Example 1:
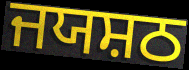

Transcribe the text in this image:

ਜਯਸ਼ਠ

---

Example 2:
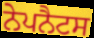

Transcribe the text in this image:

ਨੇਪਨੈਟਸ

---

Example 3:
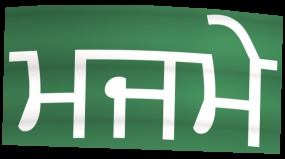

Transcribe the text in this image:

ਮਜਮੇ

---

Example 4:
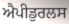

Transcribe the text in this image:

ਐਪੀਡੁਰਲਸ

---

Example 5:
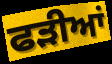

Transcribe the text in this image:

ਫੜੀਆਂ